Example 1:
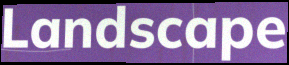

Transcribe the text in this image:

Landscape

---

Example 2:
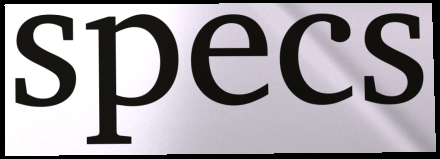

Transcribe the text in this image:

specs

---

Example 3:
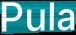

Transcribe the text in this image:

Pula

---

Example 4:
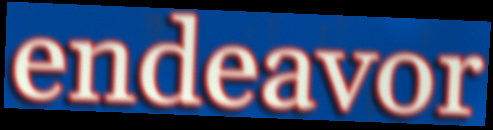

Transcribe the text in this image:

endeavor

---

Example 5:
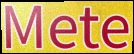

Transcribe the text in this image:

Mete